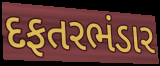
દફતરભંડાર